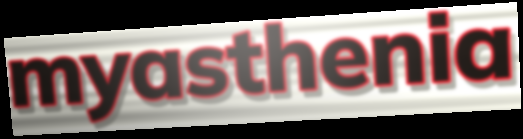
myasthenia